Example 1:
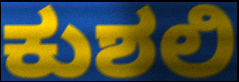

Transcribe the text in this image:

ಕುಶಲಿ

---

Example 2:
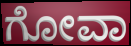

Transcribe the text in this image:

ಗೋವಾ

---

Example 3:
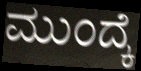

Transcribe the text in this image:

ಮುಂದ್ಕೆ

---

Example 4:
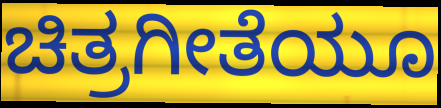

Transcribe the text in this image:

ಚಿತ್ರಗೀತೆಯೂ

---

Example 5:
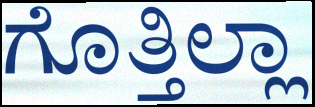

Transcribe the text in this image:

ಗೊತ್ತಿಲ್ಲಾ